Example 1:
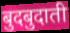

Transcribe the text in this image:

बुदबुदाती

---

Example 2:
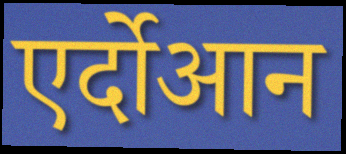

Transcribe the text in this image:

एर्दोआन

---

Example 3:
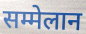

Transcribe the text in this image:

सम्मेलान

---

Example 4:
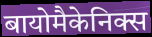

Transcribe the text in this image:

बायोमैकेनिक्स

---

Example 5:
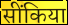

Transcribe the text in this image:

सींकिया